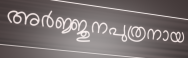
അർജ്ജുനപുത്രനായ